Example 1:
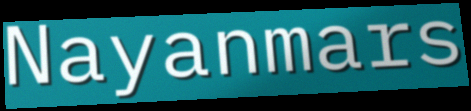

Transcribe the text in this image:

Nayanmars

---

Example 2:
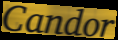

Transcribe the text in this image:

Candor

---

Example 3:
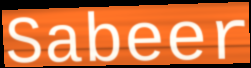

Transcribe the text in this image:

Sabeer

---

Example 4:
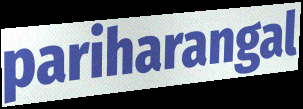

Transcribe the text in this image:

pariharangal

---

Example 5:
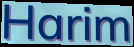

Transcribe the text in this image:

Harim